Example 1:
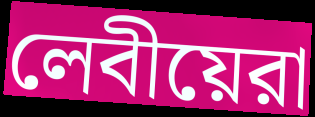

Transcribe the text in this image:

লেবীয়েরা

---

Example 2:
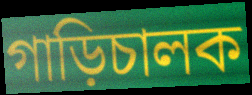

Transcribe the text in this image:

গাড়িচালক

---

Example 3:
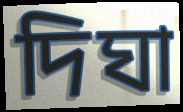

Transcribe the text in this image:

দিঘা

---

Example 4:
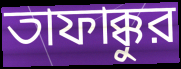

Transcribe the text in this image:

তাফাক্কুর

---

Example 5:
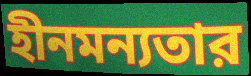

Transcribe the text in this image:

হীনমন্যতার